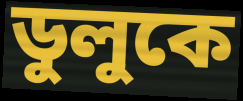
ডুলুকে